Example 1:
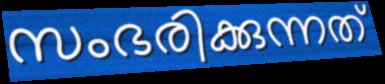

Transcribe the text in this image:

സംഭരിക്കുന്നത്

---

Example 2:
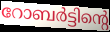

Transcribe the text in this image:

റോബർട്ടിന്റെ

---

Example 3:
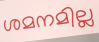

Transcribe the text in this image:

ശമനമില്ല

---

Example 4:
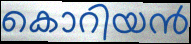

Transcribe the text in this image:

കൊറിയൻ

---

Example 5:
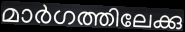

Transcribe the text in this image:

മാർഗത്തിലേക്കു